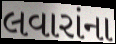
લવારાંના